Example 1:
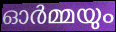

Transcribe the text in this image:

ഓർമ്മയും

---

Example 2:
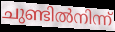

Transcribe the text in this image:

ചുണ്ടിൽനിന്ന്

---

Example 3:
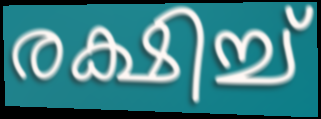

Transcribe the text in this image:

രക്ഷിച്ച്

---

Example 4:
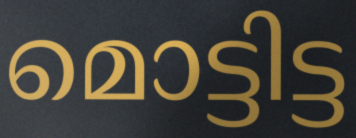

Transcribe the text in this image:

മൊട്ടിട്ട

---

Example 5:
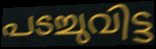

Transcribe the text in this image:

പടച്ചുവിട്ട